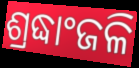
ଶ୍ରଦ୍ଧାଂଜଳି